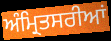
ਅੰਮ੍ਰਿਤਸਰੀਆਂ